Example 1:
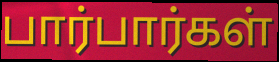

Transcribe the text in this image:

பார்பார்கள்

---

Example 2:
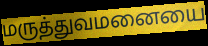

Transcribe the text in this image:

மருத்துவமனையை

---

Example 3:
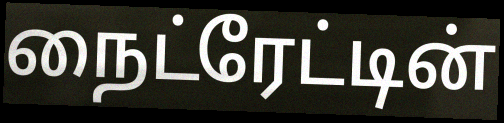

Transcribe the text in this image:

நைட்ரேட்டின்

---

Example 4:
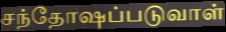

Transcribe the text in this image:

சந்தோஷப்படுவாள்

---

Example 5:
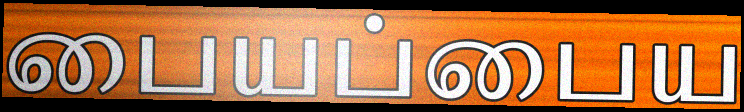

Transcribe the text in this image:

பையப்பைய